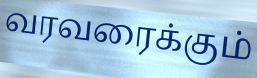
வரவரைக்கும்